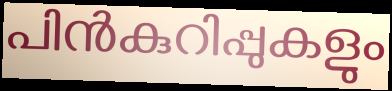
പിൻകുറിപ്പുകളും